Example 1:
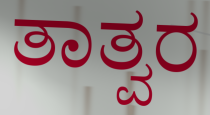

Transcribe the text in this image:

ತಾತ್ವರ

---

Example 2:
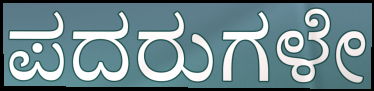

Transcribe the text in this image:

ಪದರುಗಳೇ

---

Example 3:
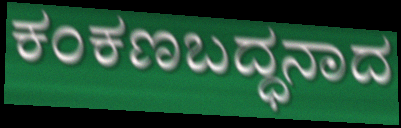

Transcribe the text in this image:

ಕಂಕಣಬದ್ಧನಾದ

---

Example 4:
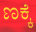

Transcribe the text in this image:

ಣಕ್ಕೆ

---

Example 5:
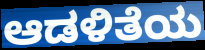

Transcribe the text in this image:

ಆಡಳಿತೆಯ